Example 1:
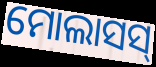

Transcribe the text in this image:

ମୋଲାସସ୍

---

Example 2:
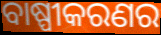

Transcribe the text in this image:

ବାଷ୍ପୀକରଣର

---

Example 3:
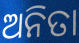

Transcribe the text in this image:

ଅନିତା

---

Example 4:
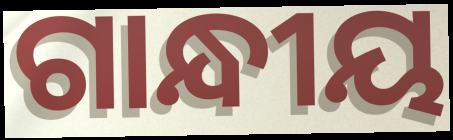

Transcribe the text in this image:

ଗାନ୍ଧୀୟ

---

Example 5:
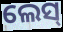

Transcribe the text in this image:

ଲେସ୍